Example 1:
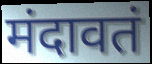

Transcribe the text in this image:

मंदावतं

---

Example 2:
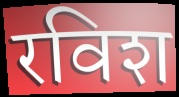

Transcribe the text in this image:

रविश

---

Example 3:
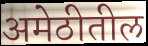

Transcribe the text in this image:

अमेठीतील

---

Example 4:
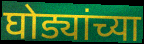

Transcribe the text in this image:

घोड्यांच्या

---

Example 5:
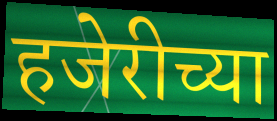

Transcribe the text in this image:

हजेरीच्या